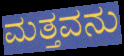
ಮತ್ತವನು